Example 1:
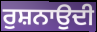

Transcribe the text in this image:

ਰੁਸ਼ਨਾਉਦੀ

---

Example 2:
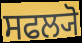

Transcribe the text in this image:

ਸਫਲ੍ਯੋ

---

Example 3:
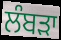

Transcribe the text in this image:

ਲੰਬੜਾ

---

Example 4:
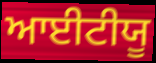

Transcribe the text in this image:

ਆਈਟੀਯੂ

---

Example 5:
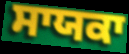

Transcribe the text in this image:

ਸਾਯਕਾ